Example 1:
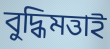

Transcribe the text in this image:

বুদ্ধিমত্তাই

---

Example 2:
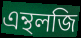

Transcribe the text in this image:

এন্থলজি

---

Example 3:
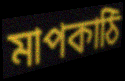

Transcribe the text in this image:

মাপকাঠি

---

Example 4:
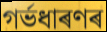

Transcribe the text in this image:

গৰ্ভধাৰণৰ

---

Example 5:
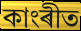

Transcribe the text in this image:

কাংৰীত